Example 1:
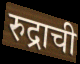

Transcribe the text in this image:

रुद्राची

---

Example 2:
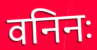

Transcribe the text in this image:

वनिनः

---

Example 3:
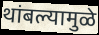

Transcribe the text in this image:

थांबल्यामुळे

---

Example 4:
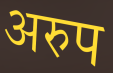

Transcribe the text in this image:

अरुप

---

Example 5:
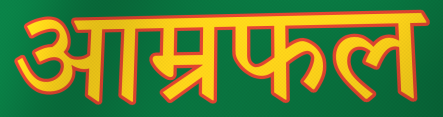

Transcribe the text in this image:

आम्रफल